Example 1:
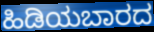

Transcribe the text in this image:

ಹಿಡಿಯಬಾರದ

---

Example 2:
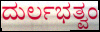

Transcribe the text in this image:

ದುರ್ಲಭತ್ವಂ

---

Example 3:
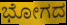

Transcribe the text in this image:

ಭೋಗದ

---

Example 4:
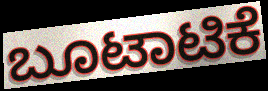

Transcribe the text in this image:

ಬೂಟಾಟಿಕೆ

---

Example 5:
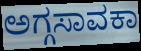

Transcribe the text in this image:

ಅಗ್ಗಸಾವಕಾ